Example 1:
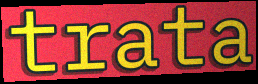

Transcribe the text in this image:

trata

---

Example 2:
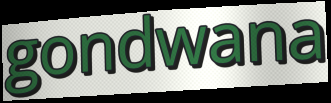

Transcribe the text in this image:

gondwana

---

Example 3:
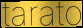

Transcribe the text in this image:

tarato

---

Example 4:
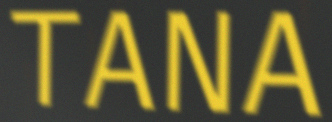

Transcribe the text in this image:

TANA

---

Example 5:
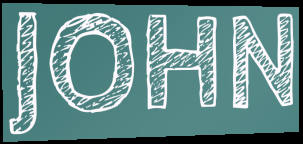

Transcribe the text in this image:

JOHN